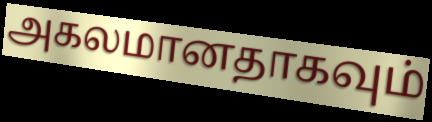
அகலமானதாகவும்